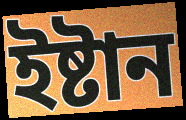
ইষ্টান